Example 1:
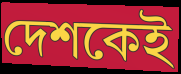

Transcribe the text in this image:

দেশকেই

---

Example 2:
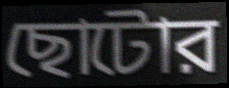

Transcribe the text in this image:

ছোটোর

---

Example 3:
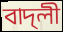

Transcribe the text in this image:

বাদ্‌লী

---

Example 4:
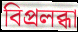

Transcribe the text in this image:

বিপ্রলব্ধা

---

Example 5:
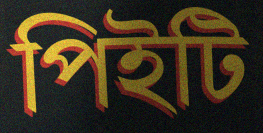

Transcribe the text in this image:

পিইটি